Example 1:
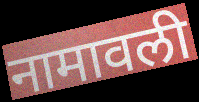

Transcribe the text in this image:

नामावली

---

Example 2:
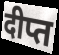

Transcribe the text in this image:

दीप्त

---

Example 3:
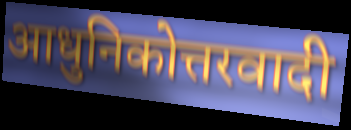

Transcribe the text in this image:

आधुनिकोत्तरवादी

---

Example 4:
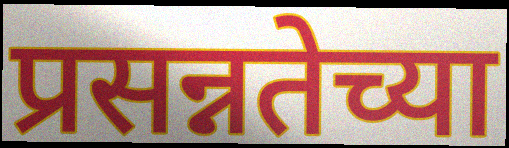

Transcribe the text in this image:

प्रसन्नतेच्या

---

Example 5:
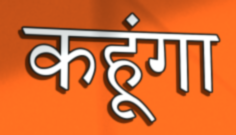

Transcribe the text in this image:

कहूंगा